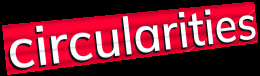
circularities